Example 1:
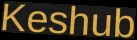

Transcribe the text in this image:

Keshub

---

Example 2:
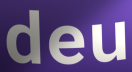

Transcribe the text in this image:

deu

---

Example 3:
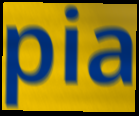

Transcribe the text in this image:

pia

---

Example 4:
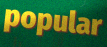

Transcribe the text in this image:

popular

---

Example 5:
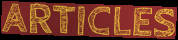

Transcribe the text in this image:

ARTICLES